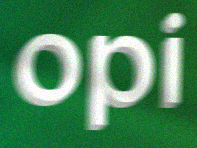
opi